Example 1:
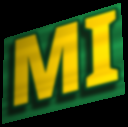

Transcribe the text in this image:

MI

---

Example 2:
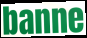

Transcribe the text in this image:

banne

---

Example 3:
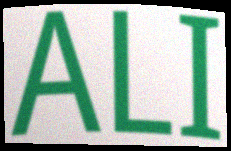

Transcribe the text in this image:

ALI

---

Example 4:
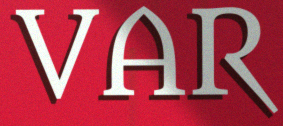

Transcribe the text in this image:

VAR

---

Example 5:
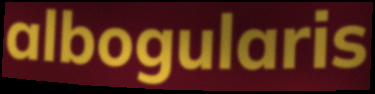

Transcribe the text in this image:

albogularis